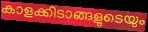
കാളക്കിടാങ്ങളുടെയും